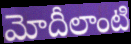
మోదీలాంటి